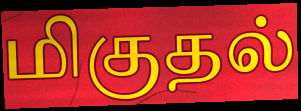
மிகுதல்